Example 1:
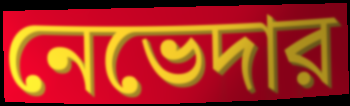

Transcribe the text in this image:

নেভেদার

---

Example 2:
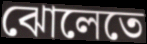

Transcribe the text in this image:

ঝোলেতে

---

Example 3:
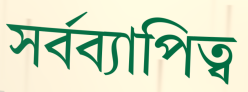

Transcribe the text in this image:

সর্বব্যাপিত্ব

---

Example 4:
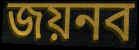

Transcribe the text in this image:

জয়নব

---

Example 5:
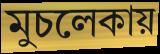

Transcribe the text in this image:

মুচলেকায়